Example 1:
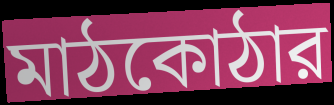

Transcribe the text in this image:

মাঠকোঠার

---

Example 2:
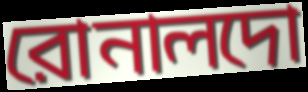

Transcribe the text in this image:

রোনালদো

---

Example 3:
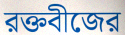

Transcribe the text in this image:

রক্তবীজের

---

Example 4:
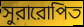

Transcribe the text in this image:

সুরারোপিত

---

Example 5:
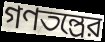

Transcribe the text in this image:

গণতন্ত্রের